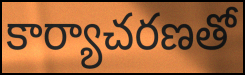
కార్యాచరణతో